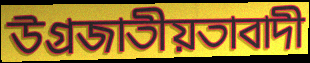
উগ্রজাতীয়তাবাদী